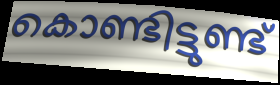
കൊണ്ടിട്ടുണ്ട്